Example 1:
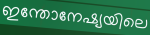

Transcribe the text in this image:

ഇന്തോനേഷ്യയിലെ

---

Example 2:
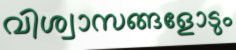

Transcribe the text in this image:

വിശ്വാസങ്ങളോടും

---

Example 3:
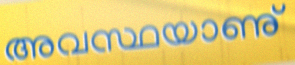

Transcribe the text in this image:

അവസ്ഥയാണു്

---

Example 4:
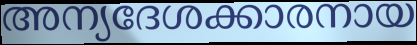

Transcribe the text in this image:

അന്യദേശക്കാരനായ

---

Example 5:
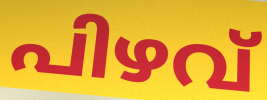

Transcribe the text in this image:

പിഴവ്